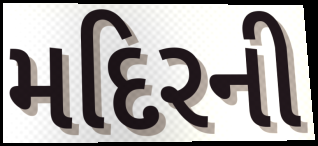
મદિરની